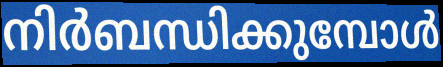
നിർബന്ധിക്കുമ്പോൾ